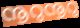
നൂറുനൂറു